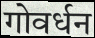
गोवर्धन